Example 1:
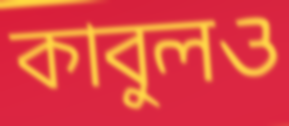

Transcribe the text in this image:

কাবুলও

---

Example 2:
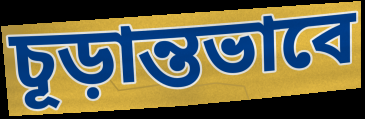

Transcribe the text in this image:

চূড়ান্তভাবে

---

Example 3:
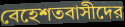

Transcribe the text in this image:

বেহেশতবাসীদের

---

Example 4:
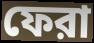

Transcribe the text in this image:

ফেরা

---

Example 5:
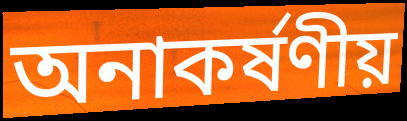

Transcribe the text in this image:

অনাকর্ষণীয়